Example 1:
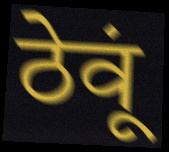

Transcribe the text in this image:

ठेवूं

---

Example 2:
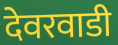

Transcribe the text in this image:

देवरवाडी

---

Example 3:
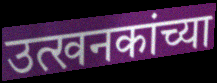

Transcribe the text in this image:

उत्खनकांच्या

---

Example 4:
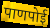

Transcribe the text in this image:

पाणपोई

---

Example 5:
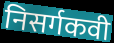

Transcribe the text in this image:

निसर्गकवी